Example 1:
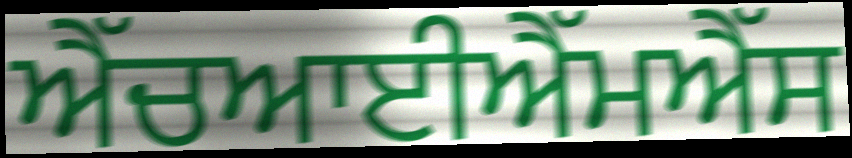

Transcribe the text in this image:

ਐੱਚਆਈਐੱਮਐੱਸ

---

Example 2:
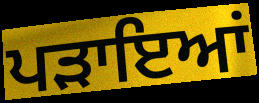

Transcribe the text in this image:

ਪੜਾਇਆਂ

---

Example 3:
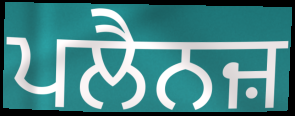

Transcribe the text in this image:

ਪਲੈਨਜ਼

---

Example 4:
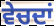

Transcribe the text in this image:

ਵੇਚਦਾਂ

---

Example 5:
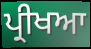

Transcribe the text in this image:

ਪ੍ਰੀਖਆ